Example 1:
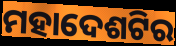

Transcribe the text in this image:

ମହାଦେଶଟିର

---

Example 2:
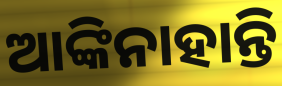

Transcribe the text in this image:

ଆଙ୍କିନାହାନ୍ତି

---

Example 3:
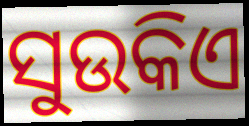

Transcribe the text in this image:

ସୁଉକିଏ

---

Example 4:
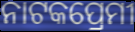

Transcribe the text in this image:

ନାଟକପ୍ରେମୀ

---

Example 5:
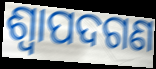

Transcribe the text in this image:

ଶ୍ୱାପଦଗଣ